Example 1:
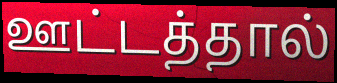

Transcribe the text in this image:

ஊட்டத்தால்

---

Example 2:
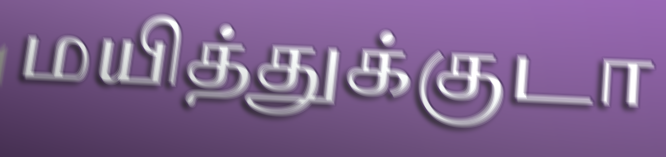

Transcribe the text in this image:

மயித்துக்குடா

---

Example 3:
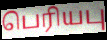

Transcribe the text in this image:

பெரியபு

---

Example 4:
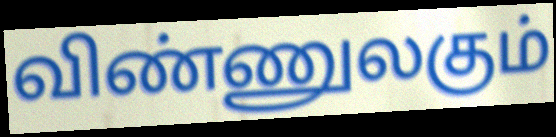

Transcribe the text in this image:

விண்ணுலகும்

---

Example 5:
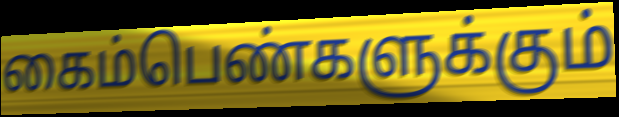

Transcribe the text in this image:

கைம்பெண்களுக்கும்